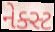
નેક્સ્ટ